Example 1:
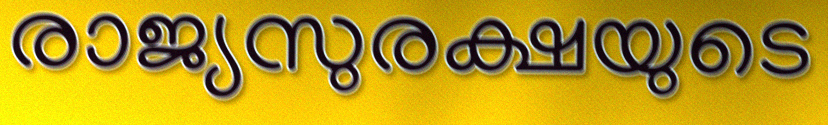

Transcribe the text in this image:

രാജ്യസുരക്ഷയുടെ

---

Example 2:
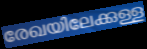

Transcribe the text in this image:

രേഖയിലേക്കുള്ള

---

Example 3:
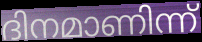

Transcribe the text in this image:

ദിനമാണിന്ന്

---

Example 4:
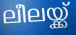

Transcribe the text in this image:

ലീലയ്ക്ക്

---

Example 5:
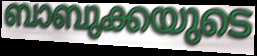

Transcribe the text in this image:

ബാബുക്കയുടെ